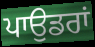
ਪਾਉਡਰਾਂ